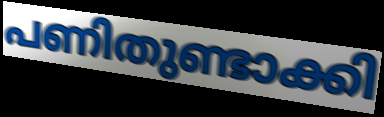
പണിതുണ്ടാക്കി